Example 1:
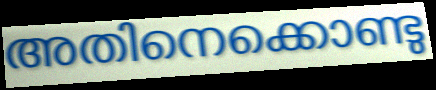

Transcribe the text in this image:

അതിനെക്കൊണ്ടു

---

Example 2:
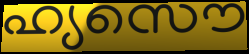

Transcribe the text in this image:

ഹ്യസൌ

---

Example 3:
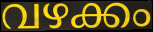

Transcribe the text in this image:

വഴക്കം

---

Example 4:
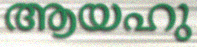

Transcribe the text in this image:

ആയഹു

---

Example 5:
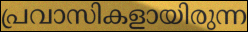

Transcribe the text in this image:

പ്രവാസികളായിരുന്ന